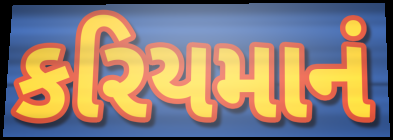
કરિયમાનં